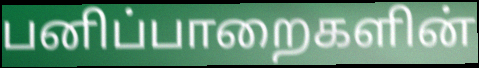
பனிப்பாறைகளின்